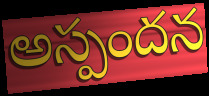
అస్పందన